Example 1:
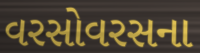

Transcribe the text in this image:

વરસોવરસના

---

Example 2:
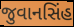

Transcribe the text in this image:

જુવાનસિંહ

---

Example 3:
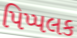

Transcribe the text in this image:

પિપ્પલક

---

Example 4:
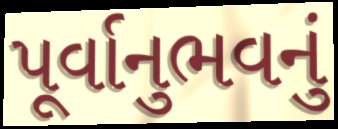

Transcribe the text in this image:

પૂર્વાનુભવનું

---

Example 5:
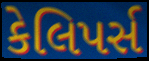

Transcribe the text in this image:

કેલિપર્સ